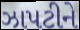
ઝાપટીને